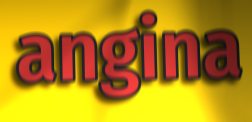
angina